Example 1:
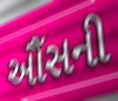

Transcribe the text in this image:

ઔંસની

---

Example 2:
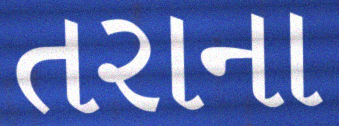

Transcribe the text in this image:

તરાના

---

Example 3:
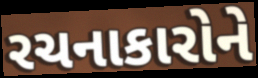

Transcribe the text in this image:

રચનાકારોને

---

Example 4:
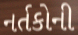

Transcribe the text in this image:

નર્તકોની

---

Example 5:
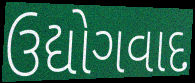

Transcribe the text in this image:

ઉદ્યોગવાદ